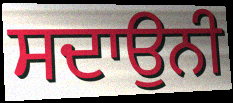
ਸਦਾਉਨੀ